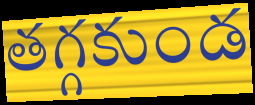
తగ్గకుండ